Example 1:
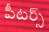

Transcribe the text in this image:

పీటర్స్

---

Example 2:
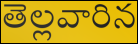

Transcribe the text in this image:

తెల్లవారిన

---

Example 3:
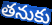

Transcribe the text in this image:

తనుకు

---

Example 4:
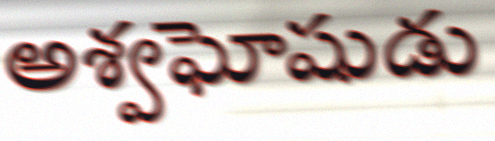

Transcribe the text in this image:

అశ్వఘోషుడు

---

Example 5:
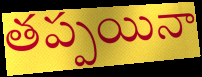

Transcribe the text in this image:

తప్పయినా